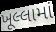
ખૂલ્લામાં